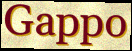
Gappo